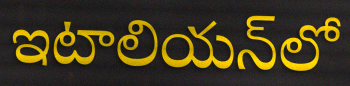
ఇటాలియన్‌లో